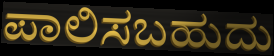
ಪಾಲಿಸಬಹುದು